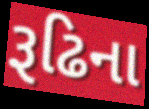
રૂઢિના